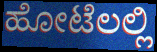
ಹೋಟೆಲಲ್ಲಿ